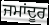
ਜਮਾਂਦੂਰ